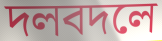
দলবদলে